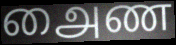
அைண